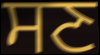
ਸਣ